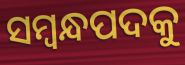
ସମ୍ବନ୍ଧପଦକୁ